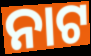
ନାଟ